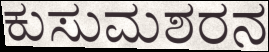
ಕುಸುಮಶರನ